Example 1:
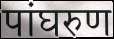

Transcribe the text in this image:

पांघरुण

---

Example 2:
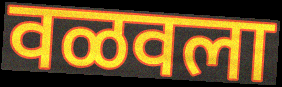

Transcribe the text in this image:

वळवला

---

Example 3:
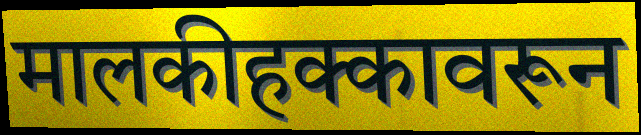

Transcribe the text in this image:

मालकीहक्कावरून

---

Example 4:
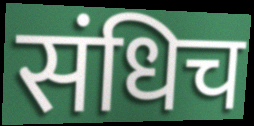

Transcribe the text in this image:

संधिच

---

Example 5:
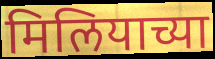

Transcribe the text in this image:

मिलियाच्या